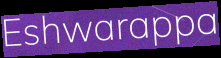
Eshwarappa